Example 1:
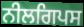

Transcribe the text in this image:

ਨੀਲਗਿਪਸ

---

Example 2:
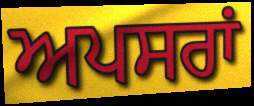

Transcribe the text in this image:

ਅਪਸਰਾਂ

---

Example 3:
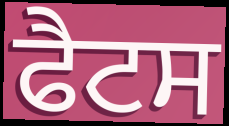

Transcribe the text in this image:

ਫੈਟਸ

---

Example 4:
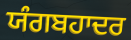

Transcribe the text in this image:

ਯੰਗਬਹਾਦਰ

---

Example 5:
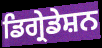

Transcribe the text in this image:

ਡਿਗ੍ਰੇਡੇਸ਼ਨ